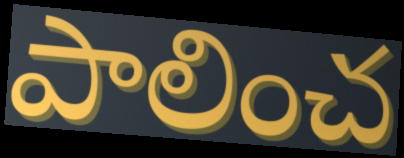
పాలించ